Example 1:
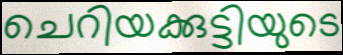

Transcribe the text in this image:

ചെറിയക്കുട്ടിയുടെ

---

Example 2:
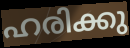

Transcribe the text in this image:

ഹരിക്കു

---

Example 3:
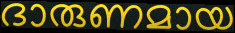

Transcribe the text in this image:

ദാരുണമായ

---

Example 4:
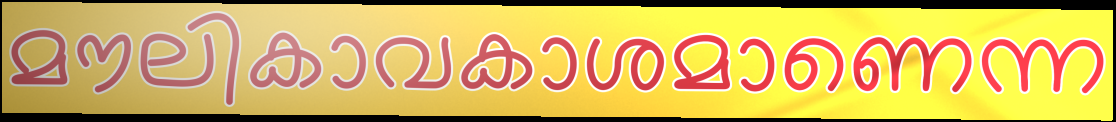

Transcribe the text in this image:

മൗലികാവകാശമാണെന്ന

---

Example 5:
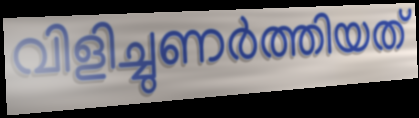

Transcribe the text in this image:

വിളിച്ചുണർത്തിയത്